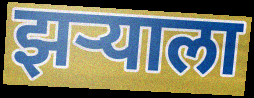
झर्‍याला